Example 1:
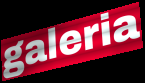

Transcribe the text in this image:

galeria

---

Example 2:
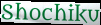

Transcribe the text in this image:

Shochiku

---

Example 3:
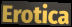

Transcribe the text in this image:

Erotica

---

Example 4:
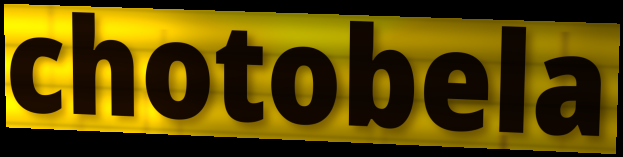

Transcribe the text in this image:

chotobela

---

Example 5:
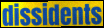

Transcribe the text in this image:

dissidents